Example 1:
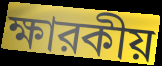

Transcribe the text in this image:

ক্ষারকীয়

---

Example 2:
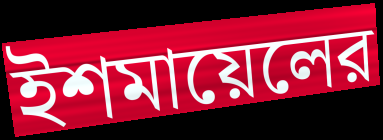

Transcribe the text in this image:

ইশমায়েলের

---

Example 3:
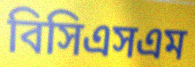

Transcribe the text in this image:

বিসিএসএম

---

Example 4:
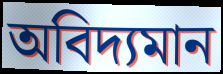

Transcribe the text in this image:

অবিদ্যমান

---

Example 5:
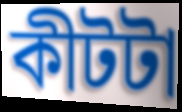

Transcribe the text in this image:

কীটটা